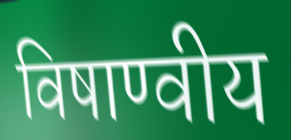
विषाण्वीय